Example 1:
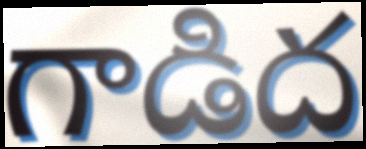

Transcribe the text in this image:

గాడిద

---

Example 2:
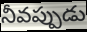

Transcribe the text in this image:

నీవప్పుడు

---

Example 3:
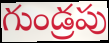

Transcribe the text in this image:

గుండ్రపు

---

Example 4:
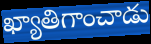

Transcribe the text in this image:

ఖ్యాతిగాంచాడు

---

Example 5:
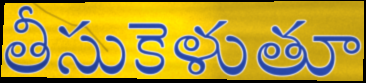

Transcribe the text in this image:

తీసుకెళుతూ